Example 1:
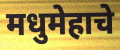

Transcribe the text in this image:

मधुमेहाचे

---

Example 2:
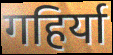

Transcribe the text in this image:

गहिर्या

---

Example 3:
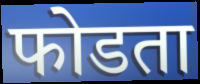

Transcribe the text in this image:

फोडता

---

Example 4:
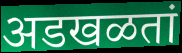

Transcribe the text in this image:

अडखळतां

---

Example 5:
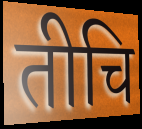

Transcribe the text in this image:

तीचि